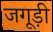
जगूड़ी